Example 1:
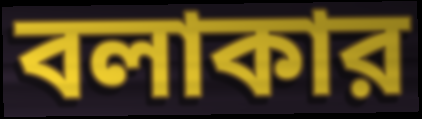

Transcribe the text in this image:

বলাকার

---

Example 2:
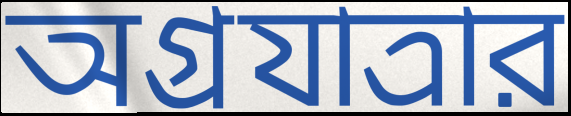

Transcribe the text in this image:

অগ্রযাত্রার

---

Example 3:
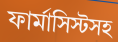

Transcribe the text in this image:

ফার্মাসিস্টসহ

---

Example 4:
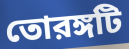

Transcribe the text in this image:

তোরঙ্গটি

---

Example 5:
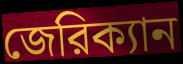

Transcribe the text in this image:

জেরিক্যান